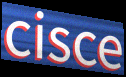
cisce